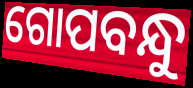
ଗୋପବନ୍ଧୁ